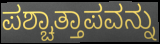
ಪಶ್ಚಾತ್ತಾಪವನ್ನು